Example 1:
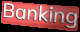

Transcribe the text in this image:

Banking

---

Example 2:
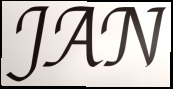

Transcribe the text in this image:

JAN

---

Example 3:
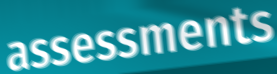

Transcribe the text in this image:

assessments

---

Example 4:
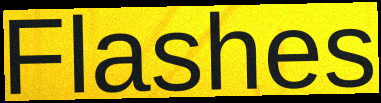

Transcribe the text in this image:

Flashes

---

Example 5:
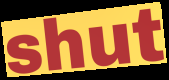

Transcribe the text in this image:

shut